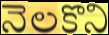
నెలకొని